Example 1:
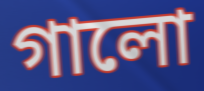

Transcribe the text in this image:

গালো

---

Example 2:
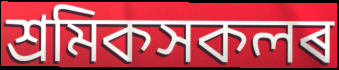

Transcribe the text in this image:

শ্ৰমিকসকলৰ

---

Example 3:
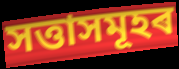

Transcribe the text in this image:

সত্তাসমূহৰ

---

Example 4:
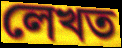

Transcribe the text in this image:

লেখত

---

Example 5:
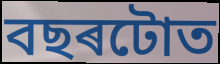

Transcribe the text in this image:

বছৰটোত